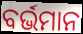
ବର୍ଭମାନ